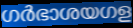
ഗർഭാശയഗള